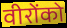
वीरोंको